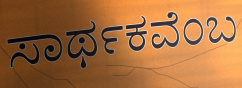
ಸಾರ್ಥಕವೆಂಬ